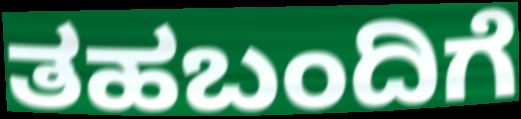
ತಹಬಂದಿಗೆ